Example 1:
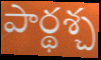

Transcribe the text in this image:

పార్థశ్చ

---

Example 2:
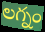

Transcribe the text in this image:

లగ్నం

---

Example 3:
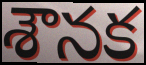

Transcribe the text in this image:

శౌనక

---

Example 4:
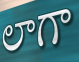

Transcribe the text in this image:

లాగా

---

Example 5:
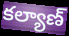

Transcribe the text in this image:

కల్యాణ్